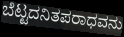
ಬೆಟ್ಟದನಿತಪರಾಧವನು